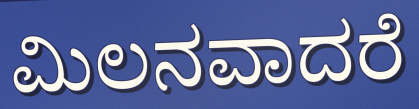
ಮಿಲನವಾದರೆ